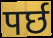
पर्छ